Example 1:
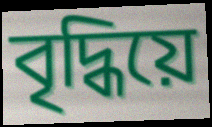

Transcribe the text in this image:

বৃদ্ধিয়ে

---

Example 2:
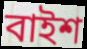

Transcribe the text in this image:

বাইশ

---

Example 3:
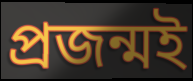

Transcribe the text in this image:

প্ৰজন্মই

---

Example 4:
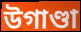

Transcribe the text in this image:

উগাণ্ডা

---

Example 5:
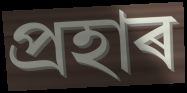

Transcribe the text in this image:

প্ৰহাৰ